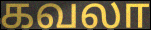
கவலா